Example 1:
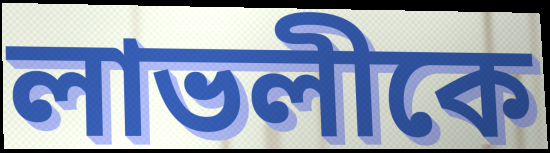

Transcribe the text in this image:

লাভলীকে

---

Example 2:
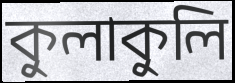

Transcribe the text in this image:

কুলাকুলি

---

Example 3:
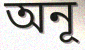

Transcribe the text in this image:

অনূ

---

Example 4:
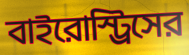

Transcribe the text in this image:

বাইরোস্ট্রিসের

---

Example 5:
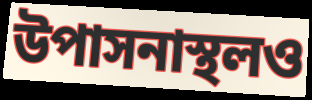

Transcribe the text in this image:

উপাসনাস্থলও